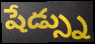
షేడ్స్ను